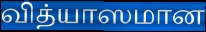
வித்யாஸமான